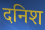
दनिश